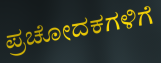
ಪ್ರಚೋದಕಗಳಿಗೆ